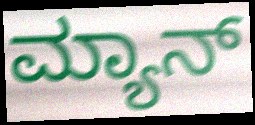
ಮ್ಯಾನ್